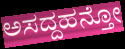
ಅಸದ್ದಹನ್ತೋ